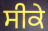
ਸੀਕੇ